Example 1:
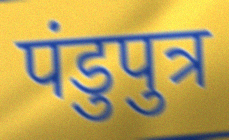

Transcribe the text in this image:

पंडुपुत्र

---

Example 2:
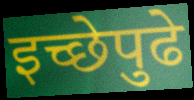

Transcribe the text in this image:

इच्छेपुढे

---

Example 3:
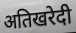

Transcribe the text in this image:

अतिखरेदी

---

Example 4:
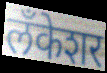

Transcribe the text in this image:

लँकेशर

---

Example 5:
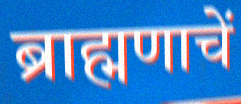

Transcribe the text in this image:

ब्राह्मणाचें